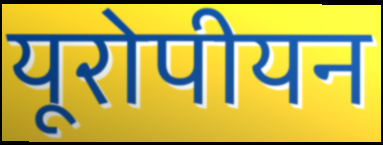
यूरोपीयन